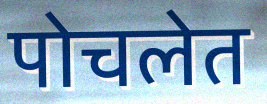
पोचलेत